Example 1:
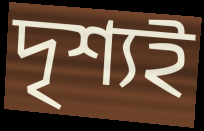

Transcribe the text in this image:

দৃশ্যই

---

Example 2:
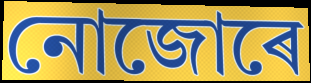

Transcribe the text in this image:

নোজোৰে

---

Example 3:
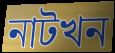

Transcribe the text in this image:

নাটখন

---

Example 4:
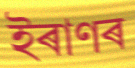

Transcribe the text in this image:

ইৰাণৰ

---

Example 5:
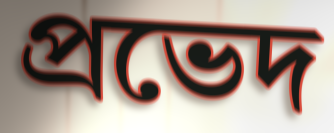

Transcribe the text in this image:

প্ৰভেদ